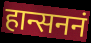
हान्सननं